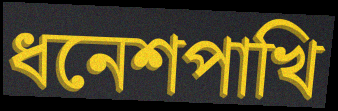
ধনেশপাখি